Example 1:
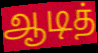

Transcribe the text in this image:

ஆடித்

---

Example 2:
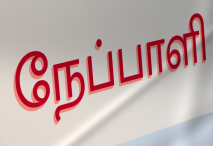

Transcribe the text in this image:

நேப்பாளி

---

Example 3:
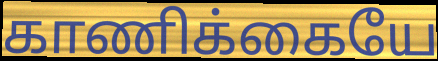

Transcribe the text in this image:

காணிக்கையே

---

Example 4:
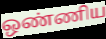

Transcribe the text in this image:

ஒண்ணிய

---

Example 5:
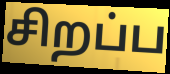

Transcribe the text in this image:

சிறப்ப